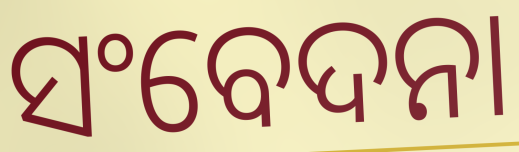
ସଂବେଦନା